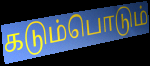
கடும்பொடும்